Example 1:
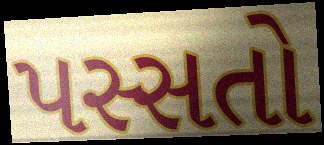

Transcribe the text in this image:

પસ્સતો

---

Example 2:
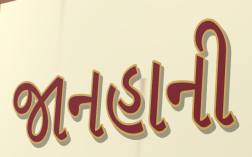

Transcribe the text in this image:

જાનહાની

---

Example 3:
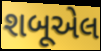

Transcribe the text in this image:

શબૂએલ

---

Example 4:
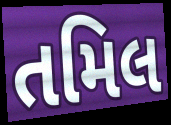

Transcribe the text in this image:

તમિલ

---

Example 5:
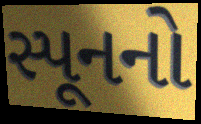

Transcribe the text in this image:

સ્પૂનનો